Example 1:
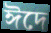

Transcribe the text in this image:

ঈদে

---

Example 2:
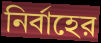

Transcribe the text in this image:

নির্বাহের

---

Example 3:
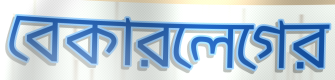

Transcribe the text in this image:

বেকারলেগের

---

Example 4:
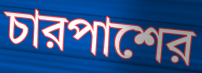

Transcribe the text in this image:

চারপাশের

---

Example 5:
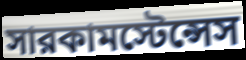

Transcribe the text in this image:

সারকামস্টেন্সেস